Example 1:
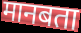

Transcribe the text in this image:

मानबता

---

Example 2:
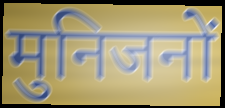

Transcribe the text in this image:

मुनिजनों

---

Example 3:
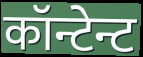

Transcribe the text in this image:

कॉन्टेन्ट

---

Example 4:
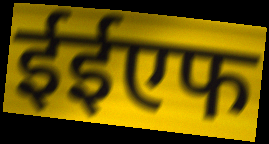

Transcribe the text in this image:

ईईएफ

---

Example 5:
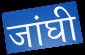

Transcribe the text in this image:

जांघी